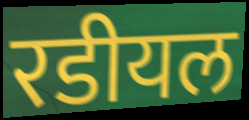
रडीयल